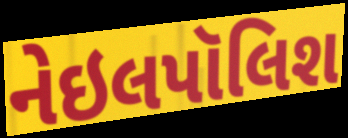
નેઇલપૉલિશ